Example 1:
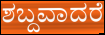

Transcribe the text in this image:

ಶಬ್ದವಾದರೆ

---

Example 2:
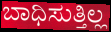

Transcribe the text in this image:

ಬಾಧಿಸುತ್ತಿಲ್ಲ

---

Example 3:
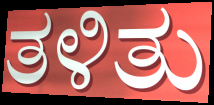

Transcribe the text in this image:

ತಳಿತು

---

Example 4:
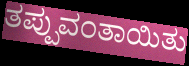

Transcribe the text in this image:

ತಪ್ಪುವಂತಾಯಿತು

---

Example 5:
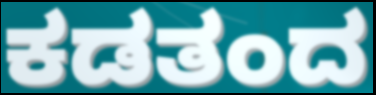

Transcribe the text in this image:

ಕಡತಂದ